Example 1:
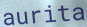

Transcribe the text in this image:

aurita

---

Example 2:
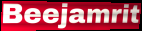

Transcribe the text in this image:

Beejamrit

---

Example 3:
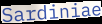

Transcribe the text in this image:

Sardiniae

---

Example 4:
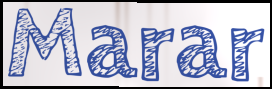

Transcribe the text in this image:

Marar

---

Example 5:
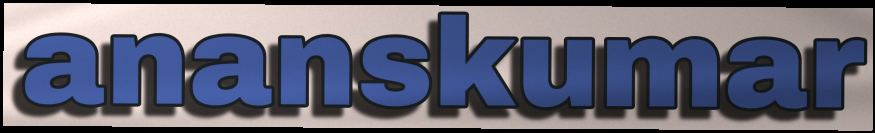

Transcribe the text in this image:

ananskumar